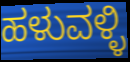
ಹಳುವಳ್ಳಿ